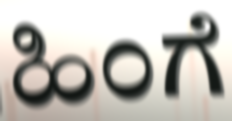
ಹಿಂಗೆ